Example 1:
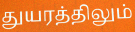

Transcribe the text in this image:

துயரத்திலும்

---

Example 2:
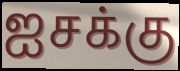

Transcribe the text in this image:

ஐசக்கு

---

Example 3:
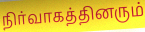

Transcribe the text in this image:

நிர்வாகத்தினரும்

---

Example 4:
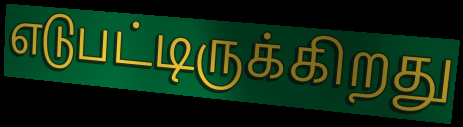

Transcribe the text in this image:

எடுபட்டிருக்கிறது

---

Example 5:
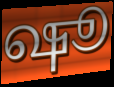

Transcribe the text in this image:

ஷூ